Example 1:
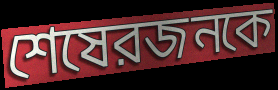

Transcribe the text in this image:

শেষেরজনকে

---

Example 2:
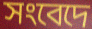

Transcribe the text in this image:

সংবেদে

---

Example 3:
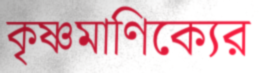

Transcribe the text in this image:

কৃষ্ণমাণিক্যের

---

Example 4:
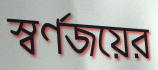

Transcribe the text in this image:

স্বর্ণজয়ের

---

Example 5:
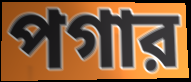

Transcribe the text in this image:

পগার